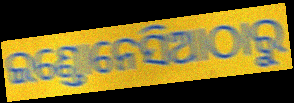
ଇଣ୍ଡୋନେସିଆଠାରୁ